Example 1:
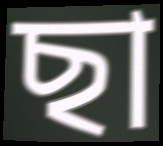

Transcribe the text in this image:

ছা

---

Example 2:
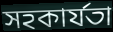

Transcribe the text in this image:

সহকাৰ্যতা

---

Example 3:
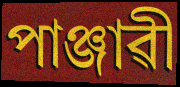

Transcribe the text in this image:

পাঞ্জাৱী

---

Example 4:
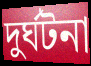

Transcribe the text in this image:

দুৰ্ঘটনা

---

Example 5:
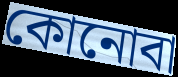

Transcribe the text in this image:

কোনোবা